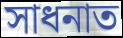
সাধনাত